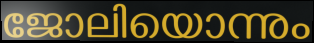
ജോലിയൊന്നും